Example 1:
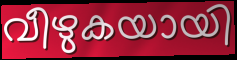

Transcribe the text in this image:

വീഴുകയായി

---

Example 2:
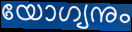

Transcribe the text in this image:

യോഗ്യനും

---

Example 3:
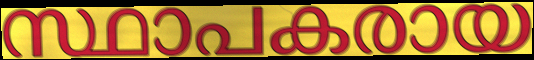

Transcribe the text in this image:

സ്ഥാപകരായ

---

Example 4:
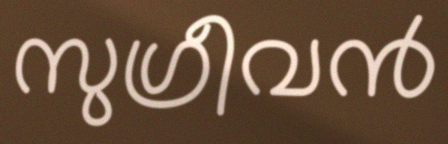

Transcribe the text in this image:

സുഗ്രീവൻ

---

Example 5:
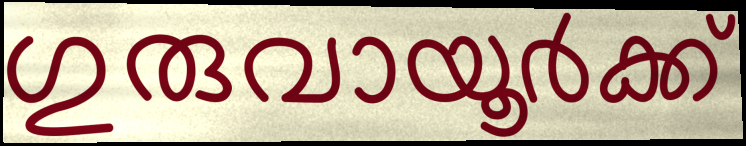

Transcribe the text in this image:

ഗുരുവായൂർക്ക്